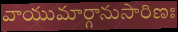
వాయుమార్గానుసారిణః